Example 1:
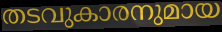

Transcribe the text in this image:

തടവുകാരനുമായ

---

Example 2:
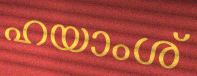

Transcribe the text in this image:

ഹയാംശ്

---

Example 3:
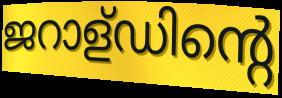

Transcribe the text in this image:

ജറാള്ഡിന്റെ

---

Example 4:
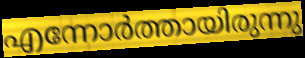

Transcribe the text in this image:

എന്നോർത്തായിരുന്നു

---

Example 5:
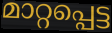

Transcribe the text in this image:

മാറ്റപ്പെട്ട